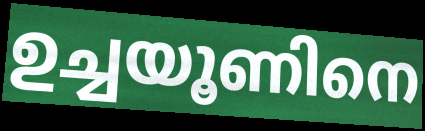
ഉച്ചയൂണിനെ